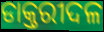
ଡାକ୍ତରୀଦଳ